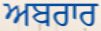
ਅਬਰਾਰ